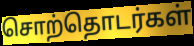
சொற்தொடர்கள்